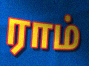
ராம்